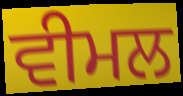
ਵੀਮਲ